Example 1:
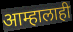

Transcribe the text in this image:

आम्हालाही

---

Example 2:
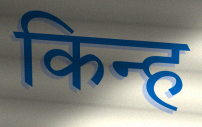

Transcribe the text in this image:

किन्ह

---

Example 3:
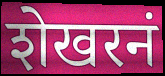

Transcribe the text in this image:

शेखरनं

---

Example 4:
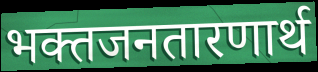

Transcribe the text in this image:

भक्तजनतारणार्थ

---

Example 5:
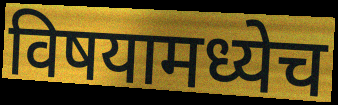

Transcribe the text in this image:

विषयामध्येच